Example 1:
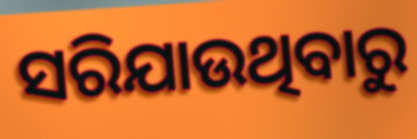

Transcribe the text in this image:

ସରିଯାଉଥିବାରୁ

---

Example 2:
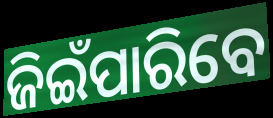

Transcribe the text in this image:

ଜିଇଁପାରିବେ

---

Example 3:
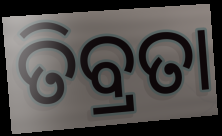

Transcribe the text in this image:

ତିବ୍ରତା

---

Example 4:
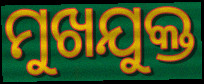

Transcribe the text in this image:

ମୁଖଯୁକ୍ତ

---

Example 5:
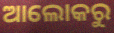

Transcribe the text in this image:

ଆଲୋକରୁ